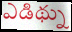
ఎడిథ్ను